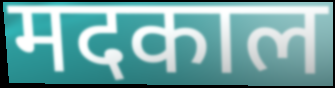
मदकाल